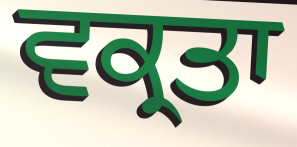
ਵਕ੍ਰਤਾ